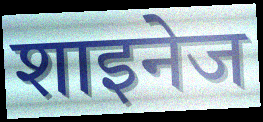
शाइनेज